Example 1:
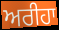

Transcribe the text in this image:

ਅਰੀਹਾ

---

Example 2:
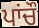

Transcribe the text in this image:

ਪਾਂਚੌ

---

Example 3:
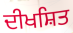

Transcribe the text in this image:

ਦੀਖਸ਼ਿਤ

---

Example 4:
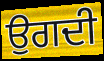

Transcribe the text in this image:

ਉਗਦੀ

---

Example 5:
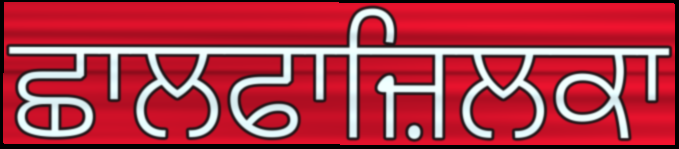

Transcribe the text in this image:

ਛਾਲਫਾਜ਼ਿਲਕਾ